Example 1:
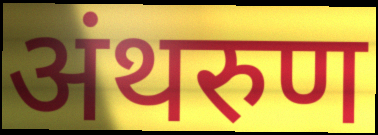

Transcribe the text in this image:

अंथरुण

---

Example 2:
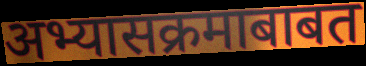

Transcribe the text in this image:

अभ्यासक्रमाबाबत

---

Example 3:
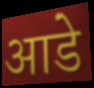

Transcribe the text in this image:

आडे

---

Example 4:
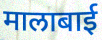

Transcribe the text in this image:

मालाबाई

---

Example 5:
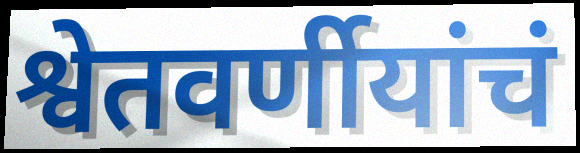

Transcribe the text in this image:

श्वेतवर्णीयांचं